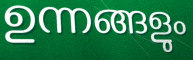
ഉന്നങ്ങളും